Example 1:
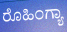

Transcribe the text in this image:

ರೊಹಿಂಗ್ಯಾ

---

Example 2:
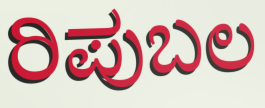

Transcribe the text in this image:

ರಿಪುಬಲ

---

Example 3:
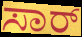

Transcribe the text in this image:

ಸಾರ್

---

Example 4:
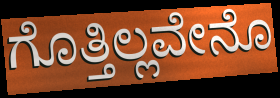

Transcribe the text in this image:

ಗೊತ್ತಿಲ್ಲವೇನೊ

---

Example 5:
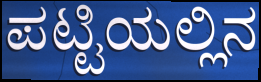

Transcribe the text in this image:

ಪಟ್ಟಿಯಲ್ಲಿನ